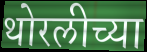
थोरलीच्या